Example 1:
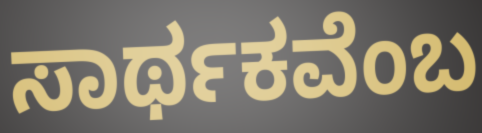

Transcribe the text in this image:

ಸಾರ್ಥಕವೆಂಬ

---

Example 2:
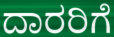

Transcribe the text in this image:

ದಾರರಿಗೆ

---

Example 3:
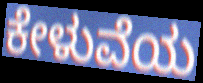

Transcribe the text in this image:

ಕೇಳುವೆಯ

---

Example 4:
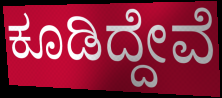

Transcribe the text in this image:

ಕೂಡಿದ್ದೇವೆ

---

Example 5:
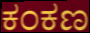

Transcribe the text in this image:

ಕಂಕಣ